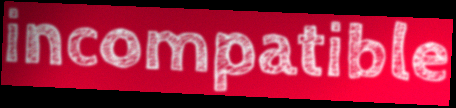
incompatible